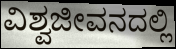
ವಿಶ್ವಜೀವನದಲ್ಲಿ